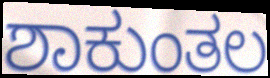
ಶಾಕುಂತಲ